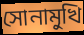
সোনামুখি